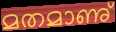
മതമാണു്